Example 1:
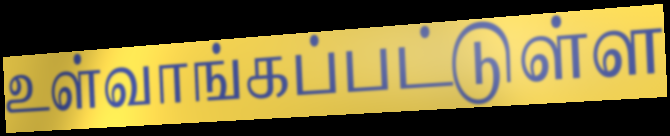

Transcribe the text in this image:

உள்வாங்கப்பட்டுள்ள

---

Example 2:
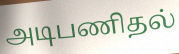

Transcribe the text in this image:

அடிபணிதல்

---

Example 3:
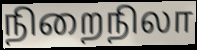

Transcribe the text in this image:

நிறைநிலா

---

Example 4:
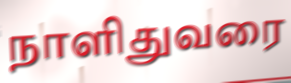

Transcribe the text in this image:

நாளிதுவரை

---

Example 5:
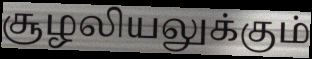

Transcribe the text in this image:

சூழலியலுக்கும்